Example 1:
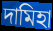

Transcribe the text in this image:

দামিহা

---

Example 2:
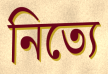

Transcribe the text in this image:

নিত্যে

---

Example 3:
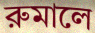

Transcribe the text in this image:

রুমালে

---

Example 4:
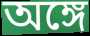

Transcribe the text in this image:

অঙ্গে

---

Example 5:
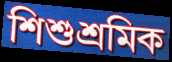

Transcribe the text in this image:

শিশুশ্রমিক